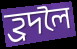
হ্ৰদলৈ